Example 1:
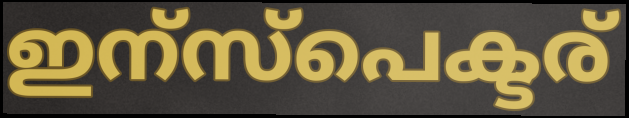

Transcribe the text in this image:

ഇന്സ്പെക്ടര്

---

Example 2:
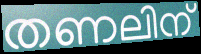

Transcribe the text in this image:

തണലിന്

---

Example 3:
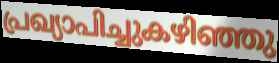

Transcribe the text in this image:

പ്രഖ്യാപിച്ചുകഴിഞ്ഞു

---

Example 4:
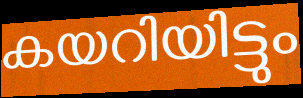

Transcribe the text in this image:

കയറിയിട്ടും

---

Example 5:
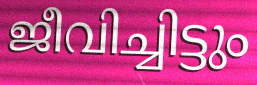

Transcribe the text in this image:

ജീവിച്ചിട്ടും